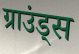
ग्राउंड्स